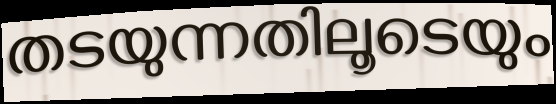
തടയുന്നതിലൂടെയും